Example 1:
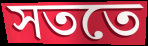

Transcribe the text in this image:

সততে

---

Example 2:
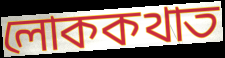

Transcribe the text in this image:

লোককথাত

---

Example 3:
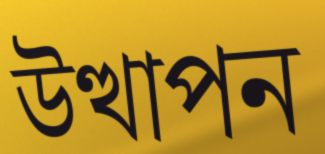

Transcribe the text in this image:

উত্থাপন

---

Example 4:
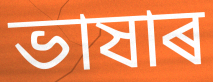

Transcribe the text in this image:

ভাষাৰ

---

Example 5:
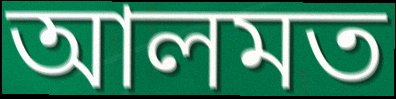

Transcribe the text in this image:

আলমত